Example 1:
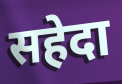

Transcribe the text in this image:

सहेदा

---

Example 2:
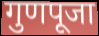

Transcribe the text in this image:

गुणपूजा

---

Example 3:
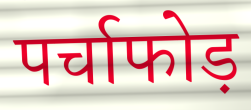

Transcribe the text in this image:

पर्चाफोड़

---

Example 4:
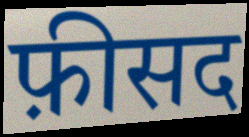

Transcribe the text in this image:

फ़ीसद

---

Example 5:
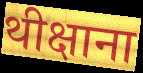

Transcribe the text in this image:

थीक्षाना